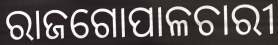
ରାଜଗୋପାଳଚାରୀ